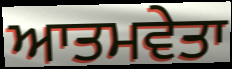
ਆਤਮਵੇਤਾ